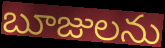
బూజులను